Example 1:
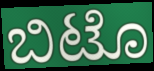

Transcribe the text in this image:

ಬಿಟೊ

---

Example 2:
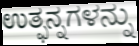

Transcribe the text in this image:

ಉತ್ಫನ್ನಗಳನ್ನು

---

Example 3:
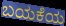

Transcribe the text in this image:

ಬಯಕೆಯ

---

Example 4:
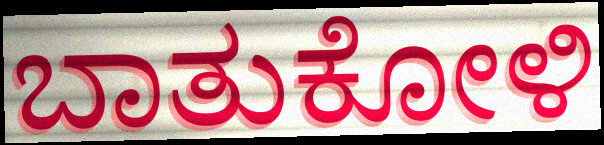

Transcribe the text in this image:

ಬಾತುಕೋಳಿ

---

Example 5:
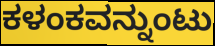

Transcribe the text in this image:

ಕಳಂಕವನ್ನುಂಟು